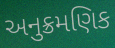
અનુક્રમણિક